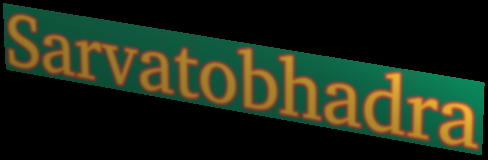
Sarvatobhadra